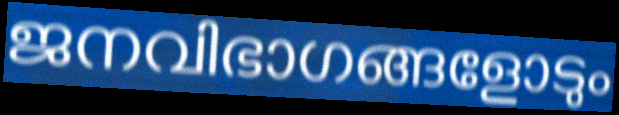
ജനവിഭാഗങ്ങളോടും